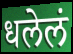
धलेलं